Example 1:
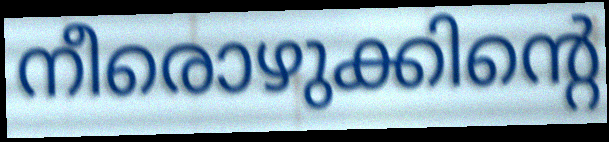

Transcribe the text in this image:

നീരൊഴുക്കിന്റെ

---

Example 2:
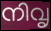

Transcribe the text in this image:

നിവൃ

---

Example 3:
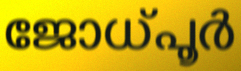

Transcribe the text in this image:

ജോധ്പൂർ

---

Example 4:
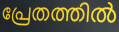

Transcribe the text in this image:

പ്രേതത്തിൽ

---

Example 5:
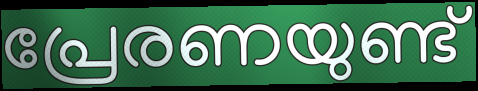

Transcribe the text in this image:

പ്രേരണയുണ്ട്